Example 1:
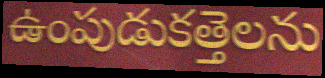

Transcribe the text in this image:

ఉంపుడుకత్తెలను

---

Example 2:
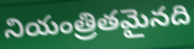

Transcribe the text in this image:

నియంత్రితమైనది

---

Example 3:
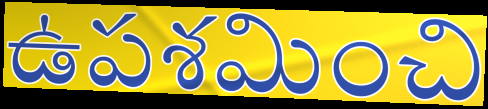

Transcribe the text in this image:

ఉపశమించి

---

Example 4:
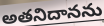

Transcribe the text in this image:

అతనిదానను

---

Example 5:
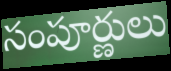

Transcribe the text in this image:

సంపూర్ణులు